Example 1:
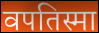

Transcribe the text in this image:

वपतिस्मा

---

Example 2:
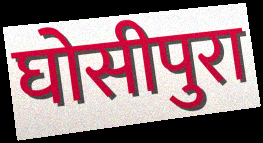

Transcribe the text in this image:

घोसीपुरा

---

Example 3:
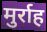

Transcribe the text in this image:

मुर्राह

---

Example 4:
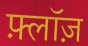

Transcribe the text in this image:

फ़्लॉज़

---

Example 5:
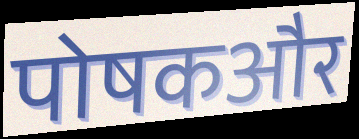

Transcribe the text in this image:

पोषकऔर